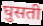
घुसती